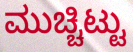
ಮುಚ್ಚಿಟ್ಟು